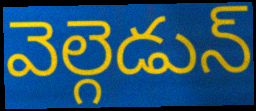
వెల్గెడున్